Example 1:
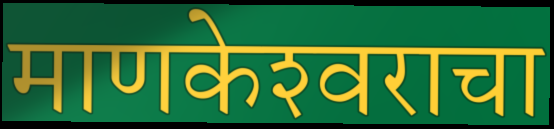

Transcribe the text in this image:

माणकेश्वराचा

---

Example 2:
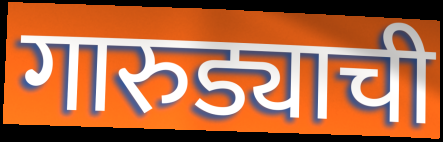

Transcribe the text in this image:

गारुड्याची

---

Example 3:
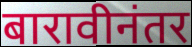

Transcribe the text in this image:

बारावीनंतर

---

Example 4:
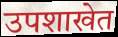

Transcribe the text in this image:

उपशाखेत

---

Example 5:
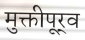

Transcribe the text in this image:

मुक्तीपूर्व